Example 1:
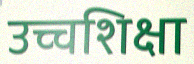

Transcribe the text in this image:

उच्‍चशिक्षा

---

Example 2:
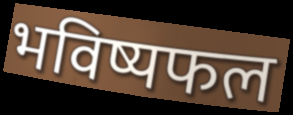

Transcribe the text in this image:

भविष्‍यफल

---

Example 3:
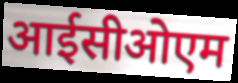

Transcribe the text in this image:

आईसीओएम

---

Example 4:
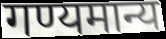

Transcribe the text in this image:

गण्यमान्य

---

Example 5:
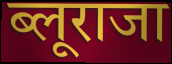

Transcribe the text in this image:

ब्लूराजा